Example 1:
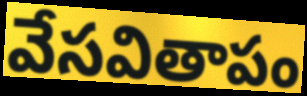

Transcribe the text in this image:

వేసవితాపం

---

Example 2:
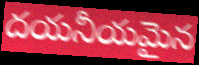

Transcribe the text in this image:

దయనీయమైన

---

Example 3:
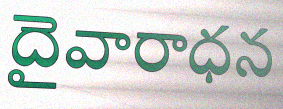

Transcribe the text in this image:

దైవారాధన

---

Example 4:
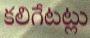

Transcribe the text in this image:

కలిగేటట్లు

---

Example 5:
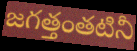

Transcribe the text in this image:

జగత్తంతటినీ